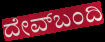
ದೇವ್‌ಬಂದಿ